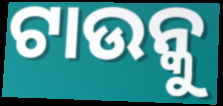
ଟାଉନ୍କୁ